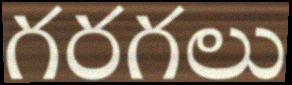
గరగలు